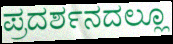
ಪ್ರದರ್ಶನದಲ್ಲೂ